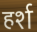
हर्श